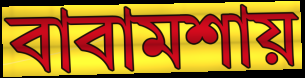
বাবামশায়